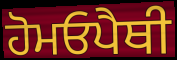
ਹੋਮਓਪੈਥੀ